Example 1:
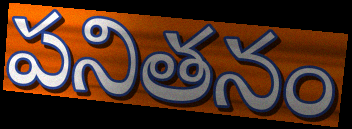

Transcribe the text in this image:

పనితనం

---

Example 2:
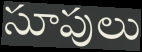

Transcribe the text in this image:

సూపులు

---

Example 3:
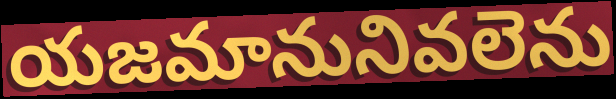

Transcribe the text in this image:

యజమానునివలెను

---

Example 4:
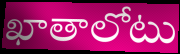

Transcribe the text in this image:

ఖాతాలోటు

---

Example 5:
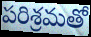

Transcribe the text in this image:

పరిశ్రమతో